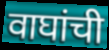
वाघांची